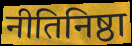
नीतिनिष्ठा